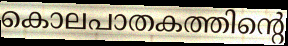
കൊലപാതകത്തിന്റെ